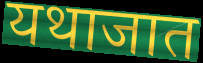
यथाजात